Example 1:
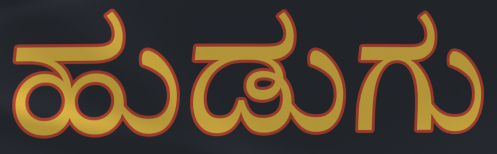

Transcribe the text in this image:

ಹುಡುಗು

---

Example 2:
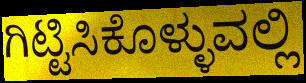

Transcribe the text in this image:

ಗಿಟ್ಟಿಸಿಕೊಳ್ಳುವಲ್ಲಿ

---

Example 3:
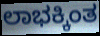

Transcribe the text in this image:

ಲಾಭಕ್ಕಿಂತ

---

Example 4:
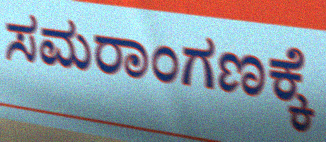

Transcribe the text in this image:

ಸಮರಾಂಗಣಕ್ಕೆ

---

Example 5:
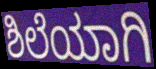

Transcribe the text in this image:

ಶಿಲೆಯಾಗಿ